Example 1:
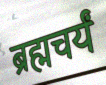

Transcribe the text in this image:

ब्रह्मचर्यं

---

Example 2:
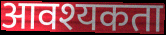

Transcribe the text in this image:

आवश्‍यकता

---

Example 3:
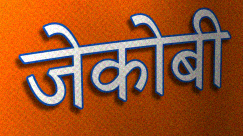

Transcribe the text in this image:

जेकोबी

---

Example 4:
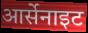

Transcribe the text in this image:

आर्सेनाइट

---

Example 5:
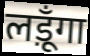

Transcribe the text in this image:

लड़ूँगा